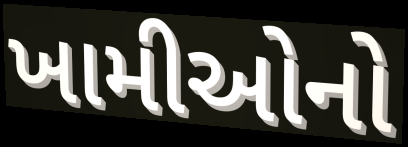
ખામીઓનો